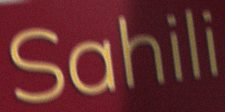
Sahili